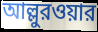
আল্লুরওয়ার